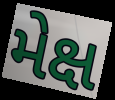
મેક્ષ